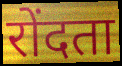
रोंदता